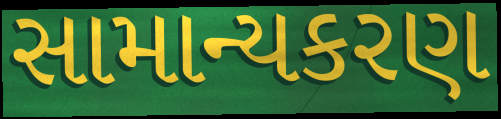
સામાન્યકરણ